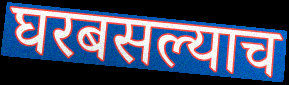
घरबसल्याच